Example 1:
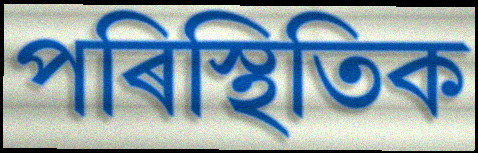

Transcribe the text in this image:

পৰিস্থিতিক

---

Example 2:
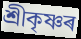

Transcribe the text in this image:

শ্ৰীকৃষ্ণৰ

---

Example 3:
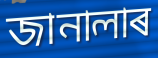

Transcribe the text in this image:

জানালাৰ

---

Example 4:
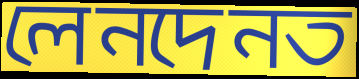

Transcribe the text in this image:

লেনদেনত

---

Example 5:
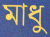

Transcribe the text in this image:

মাধু